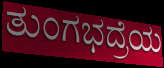
ತುಂಗಭದ್ರೆಯ